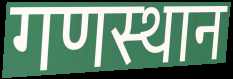
गणस्थान